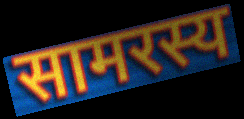
सामरस्य